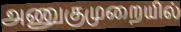
அணுகுமுறையில்